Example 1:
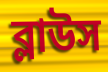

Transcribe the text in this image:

ব্লাউস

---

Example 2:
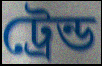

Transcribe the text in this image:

ট্রেন্ড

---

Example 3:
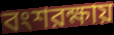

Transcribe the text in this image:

বংশরক্ষায়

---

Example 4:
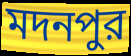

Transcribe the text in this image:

মদনপুর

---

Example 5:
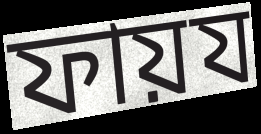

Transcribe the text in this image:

ফায়য